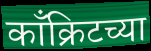
काँक्रिटच्या